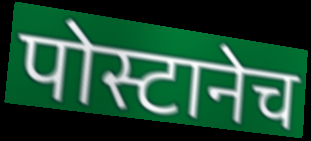
पोस्टानेच